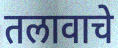
तलावाचे